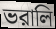
ভরালি